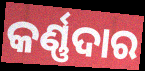
କର୍ଣ୍ଣଦାର